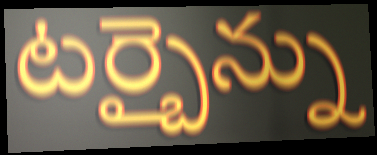
టర్బైన్ను